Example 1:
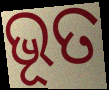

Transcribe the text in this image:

ଭୂତ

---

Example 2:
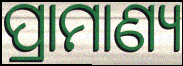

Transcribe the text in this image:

ପ୍ରାମାଣ୍ୟ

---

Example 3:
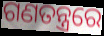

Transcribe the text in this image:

ଗଣତନ୍ତ୍ରରେ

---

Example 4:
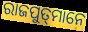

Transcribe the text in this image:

ରାଜପୁତ୍‍ମାନେ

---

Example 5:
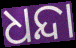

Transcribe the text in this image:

ଧନ୍ଦା